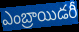
ఎంబ్రాయిడరీ